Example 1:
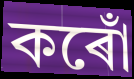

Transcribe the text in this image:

কৰোঁ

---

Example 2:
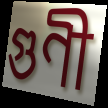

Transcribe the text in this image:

গুণী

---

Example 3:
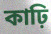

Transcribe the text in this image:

কাঢ়ি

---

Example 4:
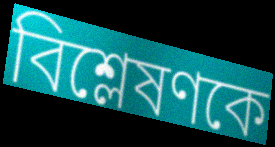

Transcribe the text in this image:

বিশ্লেষণকে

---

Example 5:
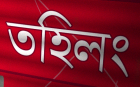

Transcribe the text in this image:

তহিলং